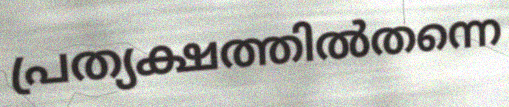
പ്രത്യക്ഷത്തിൽതന്നെ